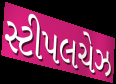
સ્ટીપલચેઝ